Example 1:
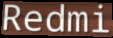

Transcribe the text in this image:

Redmi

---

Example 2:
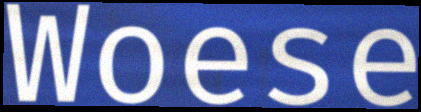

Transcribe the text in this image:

Woese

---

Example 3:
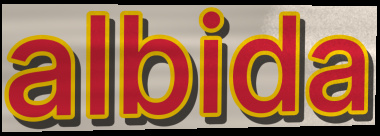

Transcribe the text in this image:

albida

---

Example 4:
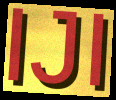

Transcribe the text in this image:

IJI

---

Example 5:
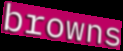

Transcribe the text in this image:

browns